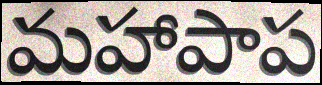
మహాపాప